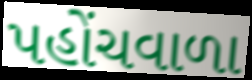
પહોંચવાળા